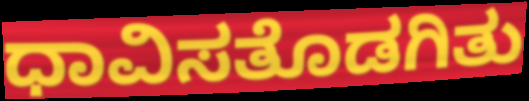
ಧಾವಿಸತೊಡಗಿತು